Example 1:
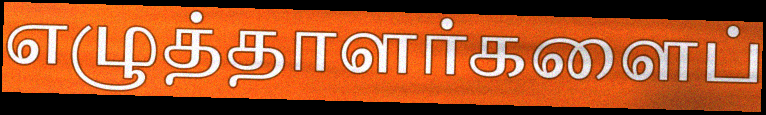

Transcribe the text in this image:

எழுத்தாளர்களைப்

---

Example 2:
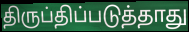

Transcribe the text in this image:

திருப்திப்படுத்தாது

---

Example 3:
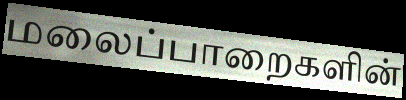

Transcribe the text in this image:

மலைப்பாறைகளின்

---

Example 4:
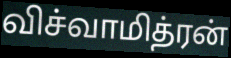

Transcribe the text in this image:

விச்வாமித்ரன்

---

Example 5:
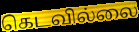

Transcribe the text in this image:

கெடவில்லை